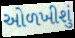
ઓળખીશું